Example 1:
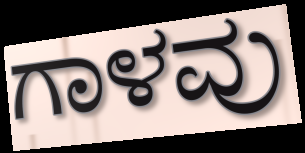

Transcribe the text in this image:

ಗಾಳವು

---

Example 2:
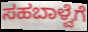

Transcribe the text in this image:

ಸಹಬಾಳ್ವೆಗೆ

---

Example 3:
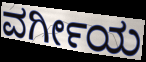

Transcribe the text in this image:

ವರ್ಗೀಯ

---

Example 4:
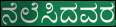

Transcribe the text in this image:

ನೆಲೆಸಿದವರ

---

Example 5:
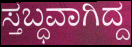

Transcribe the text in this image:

ಸ್ತಬ್ಧವಾಗಿದ್ದ